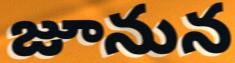
జూనున